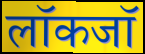
लॉकजॉ